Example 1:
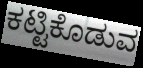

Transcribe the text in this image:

ಕಟ್ಟಿಕೊಡುವ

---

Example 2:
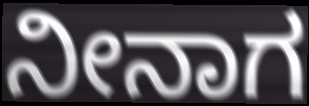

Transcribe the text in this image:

ನೀನಾಗ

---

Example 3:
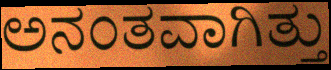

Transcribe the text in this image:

ಅನಂತವಾಗಿತ್ತು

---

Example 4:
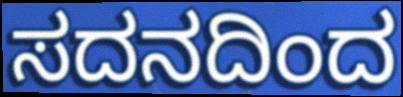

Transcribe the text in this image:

ಸದನದಿಂದ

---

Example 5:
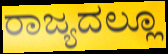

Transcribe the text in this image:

ರಾಜ್ಯದಲ್ಲೂ